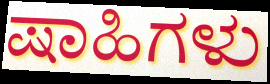
ಷಾಹಿಗಳು